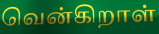
வென்கிறாள்